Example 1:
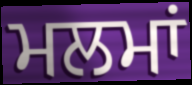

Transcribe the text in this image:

ਮਲਮਾਂ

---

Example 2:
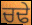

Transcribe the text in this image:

ਚਢੇ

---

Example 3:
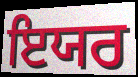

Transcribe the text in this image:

ਇਯਰ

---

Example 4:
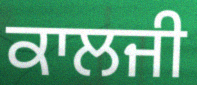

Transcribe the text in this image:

ਕਾਲਜੀ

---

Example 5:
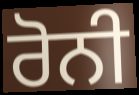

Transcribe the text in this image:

ਰੋਨੀ